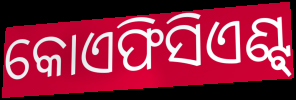
କୋଏଫିସିଏଣ୍ଟ୍